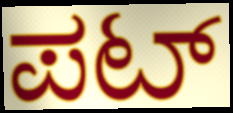
ಪಟ್